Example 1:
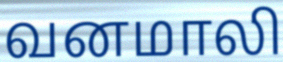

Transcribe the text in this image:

வனமாலி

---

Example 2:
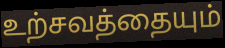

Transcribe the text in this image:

உற்சவத்தையும்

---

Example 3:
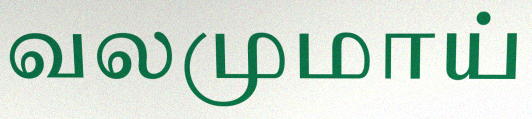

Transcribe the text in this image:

வலமுமாய்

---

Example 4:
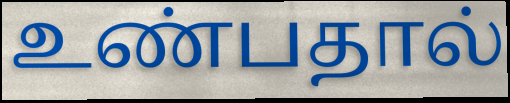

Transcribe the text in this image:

உண்பதால்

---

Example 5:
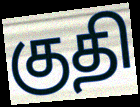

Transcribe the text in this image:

குதி